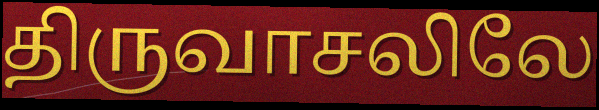
திருவாசலிலே